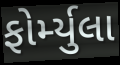
ફોર્મ્યુલા